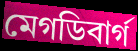
মেগডিবার্গ